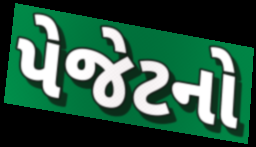
પેજેટનો